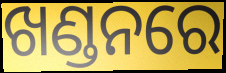
ଖଣ୍ଡନରେ